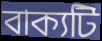
বাক্যটি